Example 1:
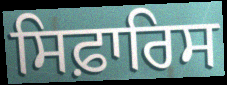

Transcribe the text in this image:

ਸਿਫ਼ਾਰਿਸ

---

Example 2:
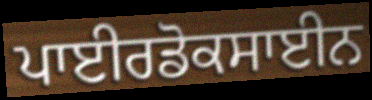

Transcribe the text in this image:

ਪਾਈਰਡੋਕਸਾਈਨ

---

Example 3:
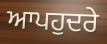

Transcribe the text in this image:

ਆਪਹੁਦਰੇ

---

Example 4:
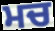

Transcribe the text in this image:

ਮਚ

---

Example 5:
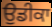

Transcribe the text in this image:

ਉਡੀਕਾ